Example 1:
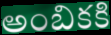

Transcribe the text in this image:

అంబికకి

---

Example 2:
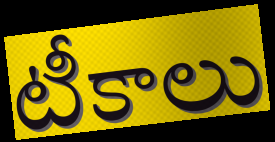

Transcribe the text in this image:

టీకాలు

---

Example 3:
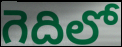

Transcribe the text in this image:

గెదిలో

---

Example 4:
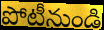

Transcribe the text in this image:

పోటీనుండి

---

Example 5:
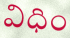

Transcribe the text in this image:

విధిం